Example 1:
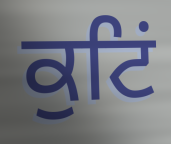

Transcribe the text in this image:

ਕੁਟਿਂ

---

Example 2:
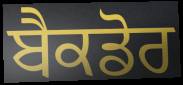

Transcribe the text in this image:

ਬੈਕਡੋਰ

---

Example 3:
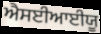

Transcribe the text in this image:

ਐਸਈਆਈਯੂ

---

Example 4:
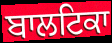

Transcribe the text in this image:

ਬਾਲਟਿਕਾ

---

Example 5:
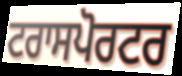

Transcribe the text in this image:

ਟਰਾਸਪੋਰਟਰ